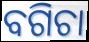
ବଗିଚା